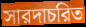
সারদাচরিত